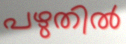
പഴുതിൽ